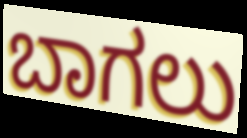
ಬಾಗಲು